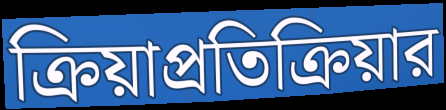
ক্রিয়াপ্রতিক্রিয়ার